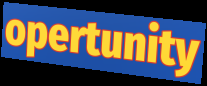
opertunity